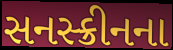
સનસ્ક્રીનના